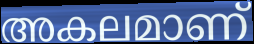
അകലമാണ്